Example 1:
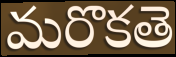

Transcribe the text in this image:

మరొకతె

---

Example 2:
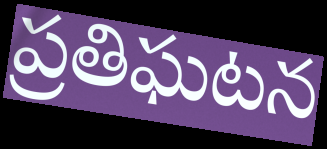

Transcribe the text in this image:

ప్రతిఘటన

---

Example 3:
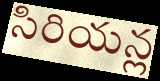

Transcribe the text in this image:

సిరియన్ల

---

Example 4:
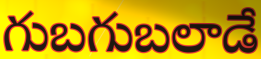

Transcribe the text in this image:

గుబగుబలాడే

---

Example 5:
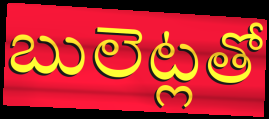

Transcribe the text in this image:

బులెట్లతో